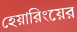
হেয়ারিংয়ের